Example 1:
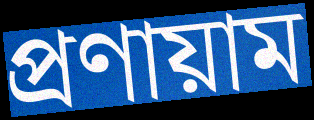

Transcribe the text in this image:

প্রণায়াম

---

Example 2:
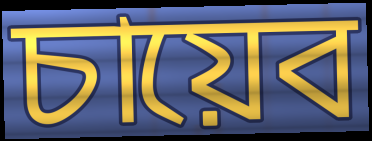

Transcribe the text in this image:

চায়েব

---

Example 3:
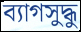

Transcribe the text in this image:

ব্যাগসুদ্ধু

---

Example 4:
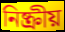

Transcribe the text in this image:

নিষ্ক্রীয়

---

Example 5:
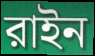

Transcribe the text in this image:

রাইন